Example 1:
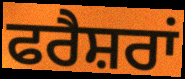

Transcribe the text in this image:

ਫਰੈਸ਼ਰਾਂ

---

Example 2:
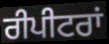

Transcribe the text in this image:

ਰੀਪੀਟਰਾਂ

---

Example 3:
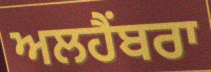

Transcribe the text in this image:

ਅਲਹੈਂਬਰਾ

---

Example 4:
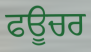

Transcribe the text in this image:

ਫਊਚਰ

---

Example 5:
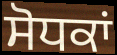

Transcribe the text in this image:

ਸੋਧਕਾਂ